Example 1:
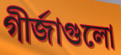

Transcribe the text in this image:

গীর্জাগুলো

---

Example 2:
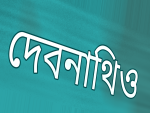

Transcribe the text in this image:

দেবনাথিও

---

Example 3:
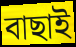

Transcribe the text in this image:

বাছাই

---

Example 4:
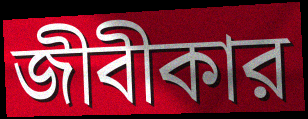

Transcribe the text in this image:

জীবীকার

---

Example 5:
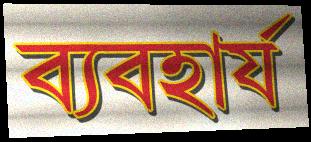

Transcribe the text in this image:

ব্যবহার্য